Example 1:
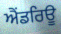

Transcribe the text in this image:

ਐਂਡਰਿਊ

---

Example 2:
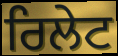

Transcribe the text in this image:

ਰਿਲੇਟ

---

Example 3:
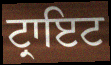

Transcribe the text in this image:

ਟ੍ਰਾਇਟ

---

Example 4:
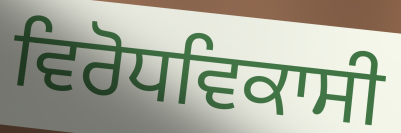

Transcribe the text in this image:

ਵਿਰੋਧਵਿਕਾਸੀ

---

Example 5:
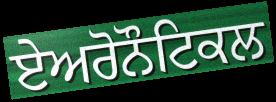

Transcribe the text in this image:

ਏਅਰੋਨੌਟਿਕਲ